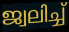
ജ്വലിച്ച്